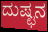
ದುಷ್ಟನ